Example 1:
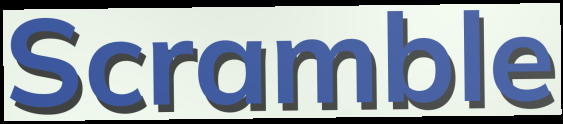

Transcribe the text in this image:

Scramble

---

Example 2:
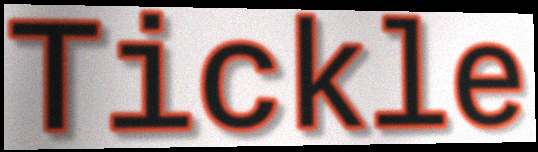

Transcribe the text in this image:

Tickle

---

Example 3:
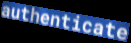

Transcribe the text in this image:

authenticate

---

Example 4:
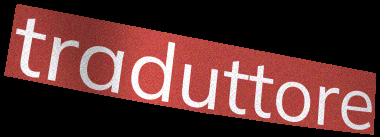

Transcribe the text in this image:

traduttore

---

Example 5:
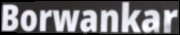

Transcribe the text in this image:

Borwankar